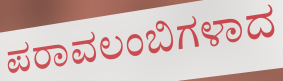
ಪರಾವಲಂಬಿಗಳಾದ